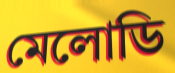
মেলোডি